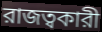
রাজত্বকারী